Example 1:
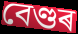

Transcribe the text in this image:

বেণ্ডৰ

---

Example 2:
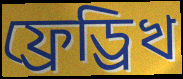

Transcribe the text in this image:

ফ্ৰেড্ৰিখ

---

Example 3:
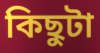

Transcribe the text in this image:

কিছুটা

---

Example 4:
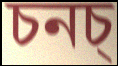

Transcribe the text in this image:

চনচ্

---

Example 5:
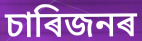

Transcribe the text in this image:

চাৰিজনৰ